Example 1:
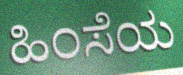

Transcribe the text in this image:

ಹಿಂಸೆಯ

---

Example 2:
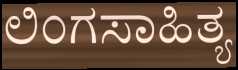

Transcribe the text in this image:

ಲಿಂಗಸಾಹಿತ್ಯ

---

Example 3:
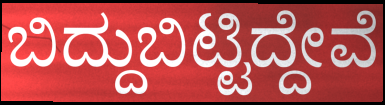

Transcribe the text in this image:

ಬಿದ್ದುಬಿಟ್ಟಿದ್ದೇವೆ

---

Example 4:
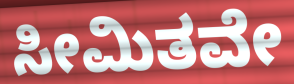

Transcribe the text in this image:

ಸೀಮಿತವೇ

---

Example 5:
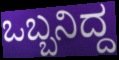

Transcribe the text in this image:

ಒಬ್ಬನಿದ್ದ